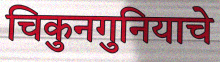
चिकुनगुनियाचे